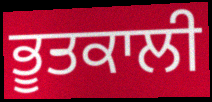
ਭੂਤਕਾਲੀ